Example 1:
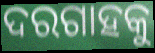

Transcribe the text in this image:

ଦରଗାହକୁ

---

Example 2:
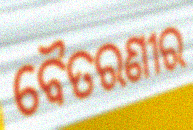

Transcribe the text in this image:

ବୈତରଣୀର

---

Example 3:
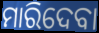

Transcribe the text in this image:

ମାରିଦେବା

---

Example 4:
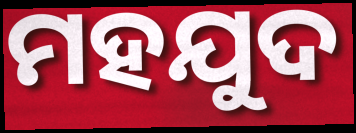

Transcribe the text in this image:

ମହଯୁଦ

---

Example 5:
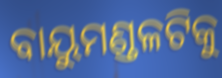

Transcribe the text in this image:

ବାୟୁମଣ୍ଡଳଟିକୁ